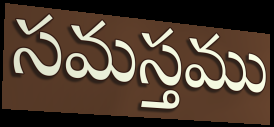
సమస్తము